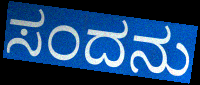
ಸಂದನು